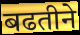
बढतीने